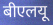
बीएलयू